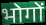
भोगों